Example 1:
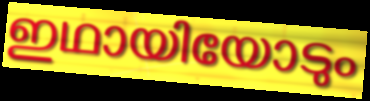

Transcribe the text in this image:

ഇഥായിയോടും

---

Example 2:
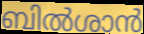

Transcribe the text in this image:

ബിൽശാൻ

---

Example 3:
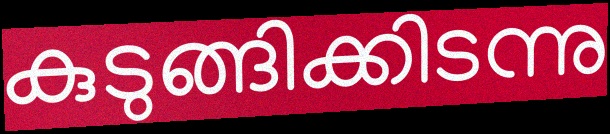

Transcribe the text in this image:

കുടുങ്ങിക്കിടന്നു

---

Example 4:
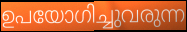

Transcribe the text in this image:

ഉപയോഗിച്ചുവരുന്ന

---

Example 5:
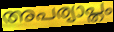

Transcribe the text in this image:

അപര്യാപ്തം